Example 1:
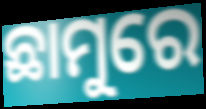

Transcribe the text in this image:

ଛାମୁରେ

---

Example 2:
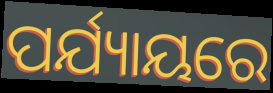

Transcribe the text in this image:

ପର୍ଯ୍ୟାୟରେ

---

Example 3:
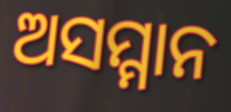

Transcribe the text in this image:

ଅସମ୍ମାନ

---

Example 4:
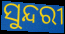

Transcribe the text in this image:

ସୁନ୍ଦରୀ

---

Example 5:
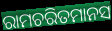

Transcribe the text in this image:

ରାମଚରିତମାନସ